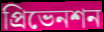
প্রিভেনশন